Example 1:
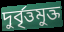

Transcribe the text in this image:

দুর্বৃত্তমুক্ত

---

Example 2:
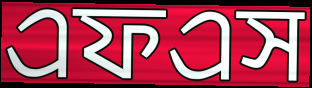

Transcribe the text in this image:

এফএস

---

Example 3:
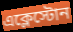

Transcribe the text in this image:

এক্লেস্টোন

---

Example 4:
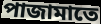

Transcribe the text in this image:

পাজামাতে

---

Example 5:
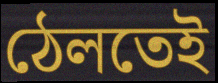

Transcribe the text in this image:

ঠেলতেই